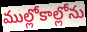
ముల్లోకాల్లోను